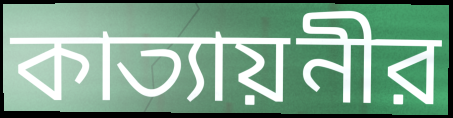
কাত্যায়নীর